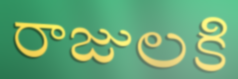
రాజులకి